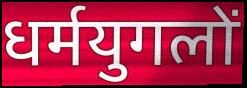
धर्मयुगलों